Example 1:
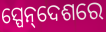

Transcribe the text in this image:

ସ୍ପେନ୍‌ଦେଶରେ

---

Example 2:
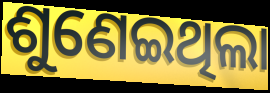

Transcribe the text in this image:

ଶୁଣେଇଥିଲା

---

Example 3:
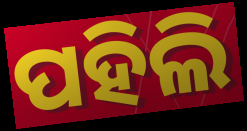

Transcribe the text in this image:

ପହିଲି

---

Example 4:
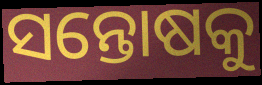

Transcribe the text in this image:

ସନ୍ତୋଷକୁ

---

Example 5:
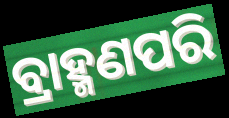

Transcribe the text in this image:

ବ୍ରାହ୍ମଣପରି